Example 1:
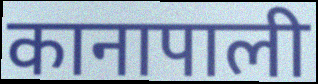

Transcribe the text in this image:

कानापाली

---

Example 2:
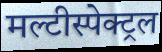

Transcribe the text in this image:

मल्टीस्पेक्ट्रल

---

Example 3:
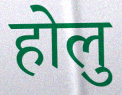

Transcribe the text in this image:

होलु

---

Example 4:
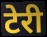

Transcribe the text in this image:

टेरी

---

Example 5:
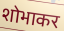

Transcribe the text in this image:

शोभाकर